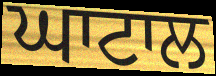
ਘਾਟਾਲ